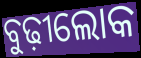
ବୁଢ଼ୀଲୋକ